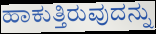
ಹಾಕುತ್ತಿರುವುದನ್ನು